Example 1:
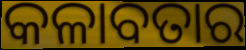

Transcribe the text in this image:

କଳାବତାର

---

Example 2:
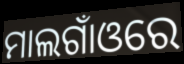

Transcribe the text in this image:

ମାଲଗାଁଓରେ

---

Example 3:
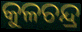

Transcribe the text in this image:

କୁଳଚନ୍ଦ୍ର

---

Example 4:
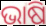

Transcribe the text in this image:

ଭାଷି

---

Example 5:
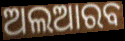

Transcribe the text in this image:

ଅଲଆରବ